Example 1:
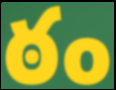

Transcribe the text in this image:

ఠం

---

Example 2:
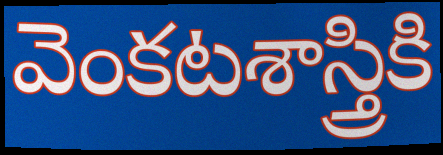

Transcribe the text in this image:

వెంకటశాస్త్రికి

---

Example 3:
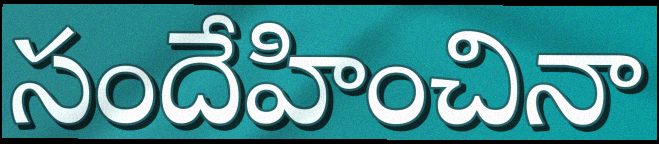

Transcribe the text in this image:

సందేహించినా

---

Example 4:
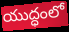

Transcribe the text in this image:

యుద్ధంలో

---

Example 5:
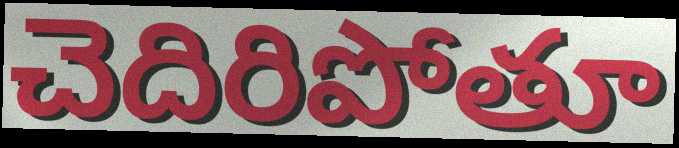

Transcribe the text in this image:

చెదిరిపోతూ